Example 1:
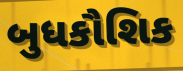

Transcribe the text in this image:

બુધકૌશિક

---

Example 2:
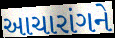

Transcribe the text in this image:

આચારાંગને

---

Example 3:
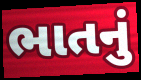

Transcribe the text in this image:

ભાતનું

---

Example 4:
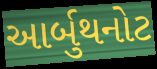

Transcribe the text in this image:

આર્બુથનોટ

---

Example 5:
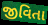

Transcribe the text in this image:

જીવિતા